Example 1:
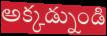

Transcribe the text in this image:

అక్కడ్నుండి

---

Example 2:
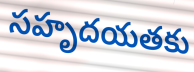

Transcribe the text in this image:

సహృదయతకు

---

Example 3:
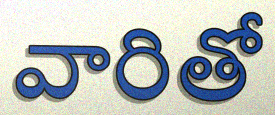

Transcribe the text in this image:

వారితో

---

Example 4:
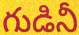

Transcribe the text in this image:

గుడినీ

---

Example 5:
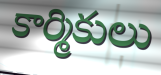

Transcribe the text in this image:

కార్మికులు